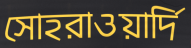
সোহরাওয়ার্দি